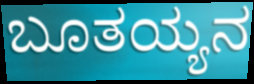
ಬೂತಯ್ಯನ